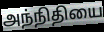
அந்நிதியை